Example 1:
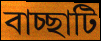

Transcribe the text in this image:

বাচ্ছাটি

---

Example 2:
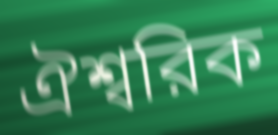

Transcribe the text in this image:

ঐশ্বরিক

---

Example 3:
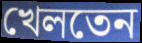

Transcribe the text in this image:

খেলতেন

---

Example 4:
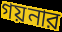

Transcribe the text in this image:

গয়নার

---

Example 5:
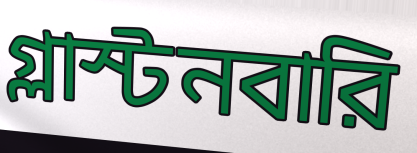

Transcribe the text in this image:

গ্লাস্টনবারি